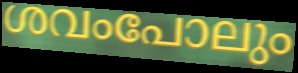
ശവംപോലും